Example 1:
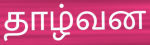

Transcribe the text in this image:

தாழ்வன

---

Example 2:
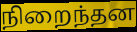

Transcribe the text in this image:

நிறைந்தன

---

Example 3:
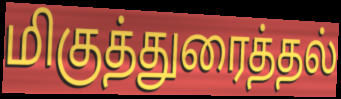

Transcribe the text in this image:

மிகுத்துரைத்தல்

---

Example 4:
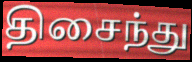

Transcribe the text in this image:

திசைந்து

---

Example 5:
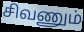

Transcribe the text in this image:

சிவணும்